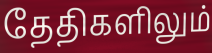
தேதிகளிலும்